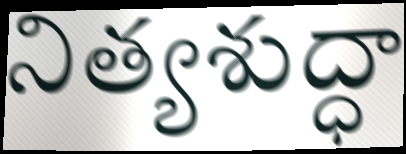
నిత్యశుద్ధా